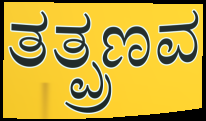
ತತ್ಪ್ರಣವ